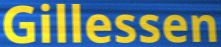
Gillessen